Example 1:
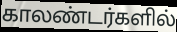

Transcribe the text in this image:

காலண்டர்களில்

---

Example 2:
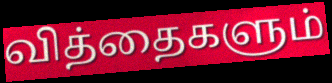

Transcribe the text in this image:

வித்தைகளும்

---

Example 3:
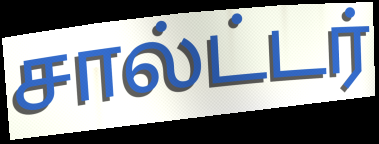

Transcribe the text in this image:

சால்ட்டர்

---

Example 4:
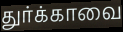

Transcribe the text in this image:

துர்க்காவை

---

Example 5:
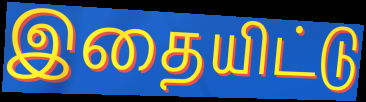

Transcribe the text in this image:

இதையிட்டு